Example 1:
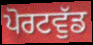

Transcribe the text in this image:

ਪੋਰਟਵੁੱਡ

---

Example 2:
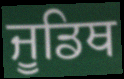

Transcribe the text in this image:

ਜੂਡਿਥ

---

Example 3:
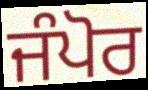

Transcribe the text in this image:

ਜੰਪੋਰ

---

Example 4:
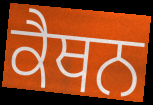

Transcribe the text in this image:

ਕੈਥਨ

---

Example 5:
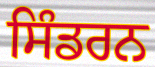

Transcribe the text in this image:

ਸਿੰਡਰਨ